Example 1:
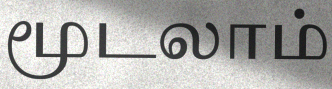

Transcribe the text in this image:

மூடலாம்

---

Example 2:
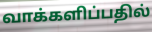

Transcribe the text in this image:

வாக்களிப்பதில்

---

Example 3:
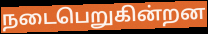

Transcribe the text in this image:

நடைபெறுகின்றன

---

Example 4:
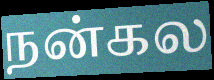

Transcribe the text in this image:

நன்கல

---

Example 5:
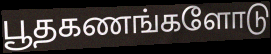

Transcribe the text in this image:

பூதகணங்களோடு